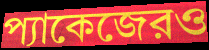
প্যাকেজেরও